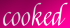
cooked